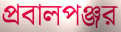
প্রবালপঞ্জর